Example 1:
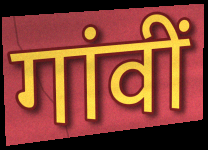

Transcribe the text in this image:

गांवीं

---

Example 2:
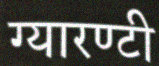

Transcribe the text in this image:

ग्यारण्टी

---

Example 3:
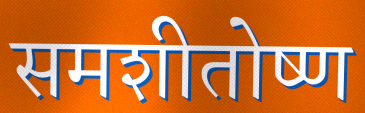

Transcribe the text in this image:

समशीतोष्ण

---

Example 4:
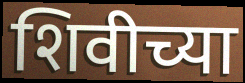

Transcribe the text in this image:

शिवीच्या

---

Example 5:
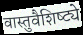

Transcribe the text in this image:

वास्तुवैशिष्ट्ये